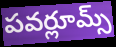
పవర్లూమ్స్